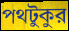
পথটুকুর